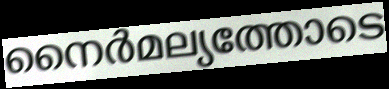
നൈർമല്യത്തോടെ